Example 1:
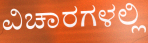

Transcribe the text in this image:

ವಿಚಾರಗಳಲ್ಲಿ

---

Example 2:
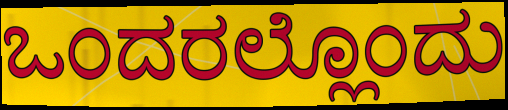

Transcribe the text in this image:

ಒಂದರಲ್ಲೊಂದು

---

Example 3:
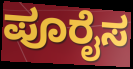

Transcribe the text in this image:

ಪೂರೈಸ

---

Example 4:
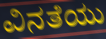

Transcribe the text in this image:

ವಿನತೆಯು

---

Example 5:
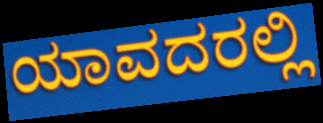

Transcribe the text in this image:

ಯಾವದರಲ್ಲಿ